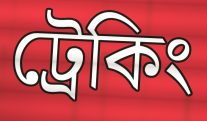
ট্রেকিং